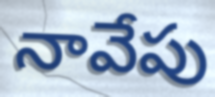
నావేపు